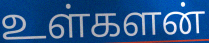
உள்களன்